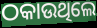
ଠକାଉଥିଲେ